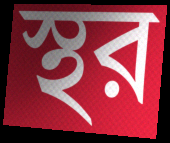
স্থর